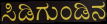
ಸಿಡಿಗುಂಡಿನ